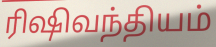
ரிஷிவந்தியம்